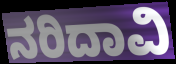
ನರಿದಾವಿ